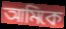
আমিকে